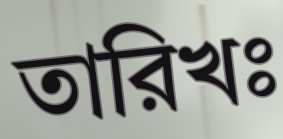
তারিখঃ